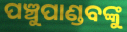
ପଞ୍ଚୁପାଣ୍ଡବଙ୍କୁ